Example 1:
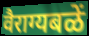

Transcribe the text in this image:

वैराग्यबळें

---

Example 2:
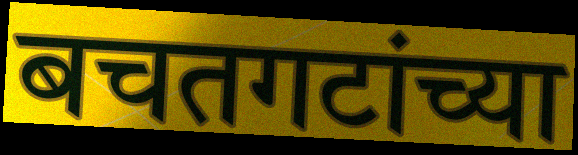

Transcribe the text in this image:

बचतगटांच्या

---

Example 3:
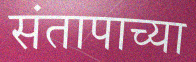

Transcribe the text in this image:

संतापाच्या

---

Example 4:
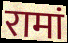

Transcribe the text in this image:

रामां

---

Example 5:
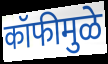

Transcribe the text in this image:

कॉफीमुळे